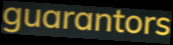
guarantors